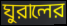
ঘুরালের